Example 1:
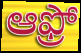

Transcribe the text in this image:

ఆఫ్రో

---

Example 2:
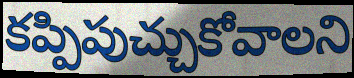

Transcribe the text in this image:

కప్పిపుచ్చుకోవాలని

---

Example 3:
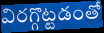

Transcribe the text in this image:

విరగ్గొట్టడంతో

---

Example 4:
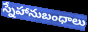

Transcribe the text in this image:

స్నేహానుబంధాలు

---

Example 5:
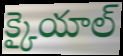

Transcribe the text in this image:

క్కైయాల్